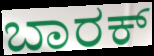
ಬಾರಕ್